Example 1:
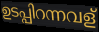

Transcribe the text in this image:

ഉടപ്പിറന്നവള്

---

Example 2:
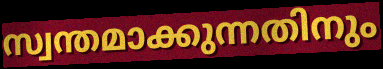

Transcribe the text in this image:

സ്വന്തമാക്കുന്നതിനും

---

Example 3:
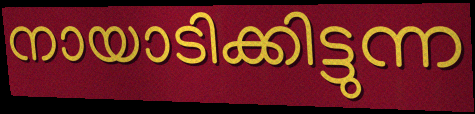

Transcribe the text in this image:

നായാടിക്കിട്ടുന്ന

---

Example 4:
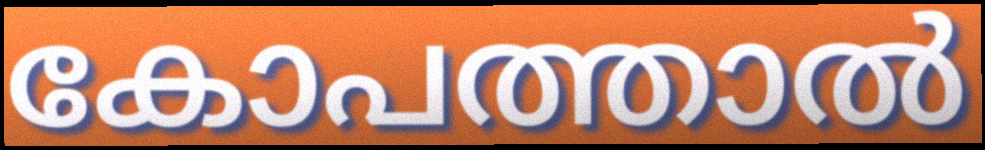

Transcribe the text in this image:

കോപത്താൽ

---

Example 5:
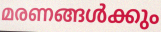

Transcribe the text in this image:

മരണങ്ങൾക്കും